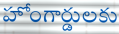
హోంగార్డులకు